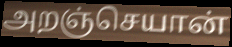
அறஞ்செயான்